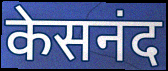
केसनंद